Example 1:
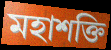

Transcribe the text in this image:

মহাশক্তি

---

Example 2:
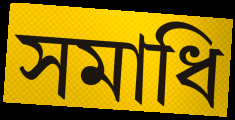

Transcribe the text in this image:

সমাধি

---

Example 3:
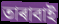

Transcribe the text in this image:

তাৰাবাই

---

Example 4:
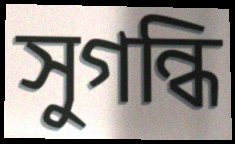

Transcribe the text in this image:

সুগন্ধি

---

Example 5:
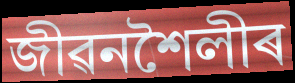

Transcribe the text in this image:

জীৱনশৈলীৰ